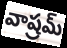
వాష్రమ్